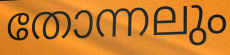
തോന്നലും